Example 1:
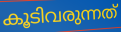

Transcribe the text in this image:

കൂടിവരുന്നത്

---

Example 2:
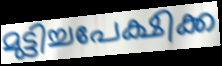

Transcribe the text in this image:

മുട്ടിച്ചപേക്ഷിക്ക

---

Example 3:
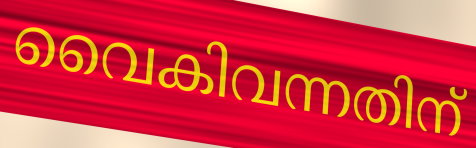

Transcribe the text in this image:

വൈകിവന്നതിന്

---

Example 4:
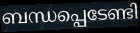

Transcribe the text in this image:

ബന്ധപ്പെടേണ്ടി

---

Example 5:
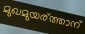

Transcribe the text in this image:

മുഖമുയര്ത്താന്